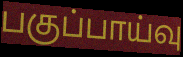
பகுப்பாய்வு